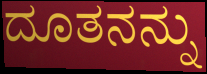
ದೂತನನ್ನು